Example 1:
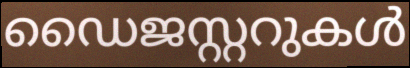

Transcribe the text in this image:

ഡൈജസ്റ്ററുകൾ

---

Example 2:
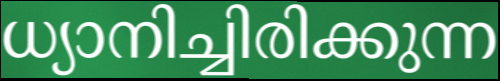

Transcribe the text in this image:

ധ്യാനിച്ചിരിക്കുന്ന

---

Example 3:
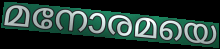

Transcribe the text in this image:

മനോരമയെ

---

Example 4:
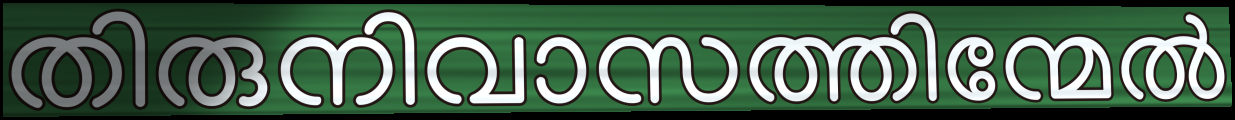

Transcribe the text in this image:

തിരുനിവാസത്തിന്മേൽ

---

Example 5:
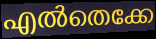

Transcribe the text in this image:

എൽതെക്കേ